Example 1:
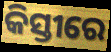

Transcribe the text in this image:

କିସ୍ତୀରେ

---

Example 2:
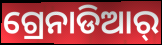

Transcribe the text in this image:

ଗ୍ରେନାଡିଆର୍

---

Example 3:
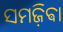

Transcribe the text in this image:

ସମଜ଼ିଵା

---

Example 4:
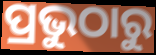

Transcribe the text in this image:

ପ୍ରଭୁଠାରୁ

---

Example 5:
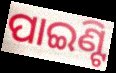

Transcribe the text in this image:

ପାଇଣ୍ଟି